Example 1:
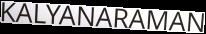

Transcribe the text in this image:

KALYANARAMAN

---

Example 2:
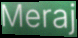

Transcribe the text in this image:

Meraj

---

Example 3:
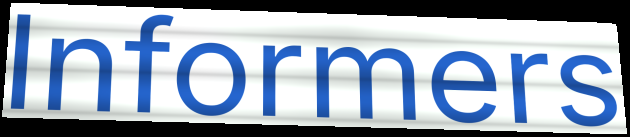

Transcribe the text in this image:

Informers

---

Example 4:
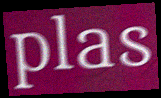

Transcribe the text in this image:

plas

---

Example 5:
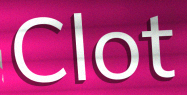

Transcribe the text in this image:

Clot